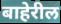
बाहेरील